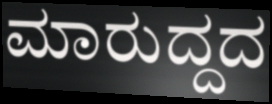
ಮಾರುದ್ದದ